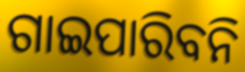
ଗାଇପାରିବନି